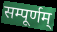
सम्पूर्णम्